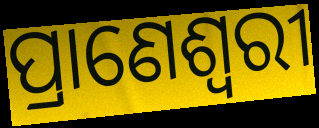
ପ୍ରାଣେଶ୍ୱରୀ